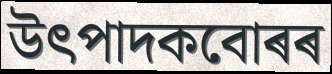
উৎপাদকবোৰৰ